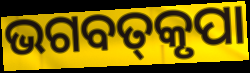
ଭଗବତ୍‌କୃପା